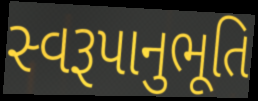
સ્વરૂપાનુભૂતિ